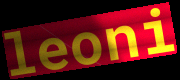
leoni